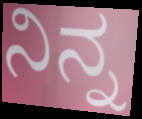
ನಿನ್ನ